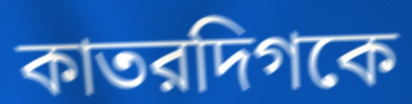
কাতরদিগকে